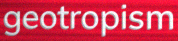
geotropism